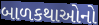
બાળકથાઓનો